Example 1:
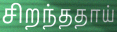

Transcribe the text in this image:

சிறந்ததாய்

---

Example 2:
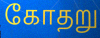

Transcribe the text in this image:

கோதறு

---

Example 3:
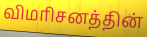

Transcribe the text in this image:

விமரிசனத்தின்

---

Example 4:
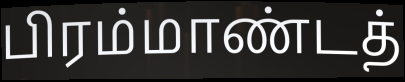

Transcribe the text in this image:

பிரம்மாண்டத்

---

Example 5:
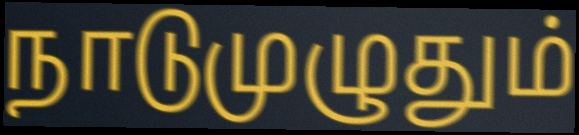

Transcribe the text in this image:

நாடுமுழுதும்